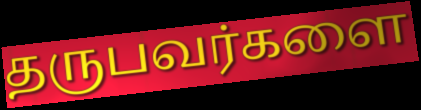
தருபவர்களை